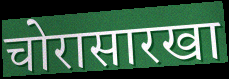
चोरासारखा